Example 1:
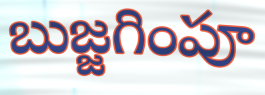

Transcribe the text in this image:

బుజ్జగింపూ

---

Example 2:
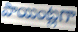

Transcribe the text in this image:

పాయింట్లగా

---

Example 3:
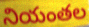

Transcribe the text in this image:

నియంతల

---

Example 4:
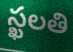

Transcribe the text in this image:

స్ఖలతి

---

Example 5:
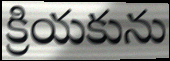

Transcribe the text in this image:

క్రియకును